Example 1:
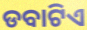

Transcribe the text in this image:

ଡବାଟିଏ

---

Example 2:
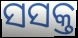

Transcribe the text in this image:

ସସକ୍ତ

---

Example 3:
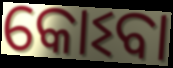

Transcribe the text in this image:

କୋଽବା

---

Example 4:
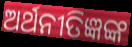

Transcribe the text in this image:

ଅର୍ଥନୀତିଜ୍ଞଙ୍କ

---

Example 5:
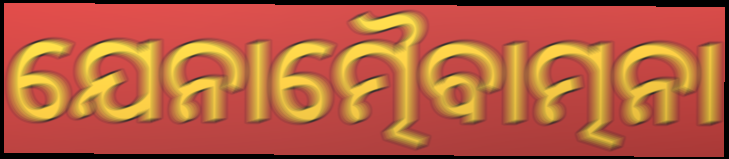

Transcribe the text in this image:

ଯେନାତ୍ମୈବାତ୍ମନା